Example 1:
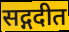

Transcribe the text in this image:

सद्गदीत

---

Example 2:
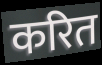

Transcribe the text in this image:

करित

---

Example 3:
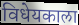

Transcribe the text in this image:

विधेयकाला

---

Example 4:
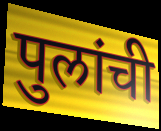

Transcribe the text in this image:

पुलांची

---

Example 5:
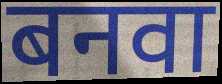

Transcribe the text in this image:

बनवा